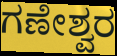
ಗಣೇಶ್ವರ